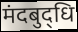
मंदबुद्धि